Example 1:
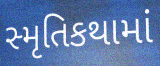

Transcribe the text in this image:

સ્મૃતિકથામાં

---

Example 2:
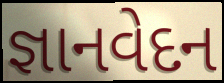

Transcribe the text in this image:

જ્ઞાનવેદન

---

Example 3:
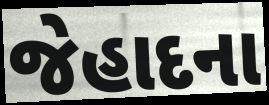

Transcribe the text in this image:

જેહાદના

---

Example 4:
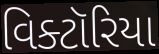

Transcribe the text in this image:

વિક્ટૉરિયા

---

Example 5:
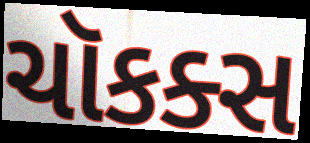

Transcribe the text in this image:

ચૉકક્સ